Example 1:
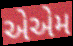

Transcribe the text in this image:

એએમ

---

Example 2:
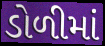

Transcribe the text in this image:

ડોળીમાં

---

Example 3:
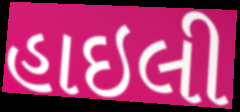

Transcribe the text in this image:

હાઇલી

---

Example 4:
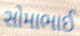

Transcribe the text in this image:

સોમાભાઈ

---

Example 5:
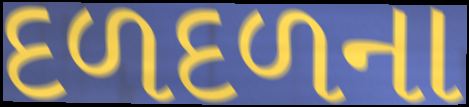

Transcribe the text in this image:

દળદળના